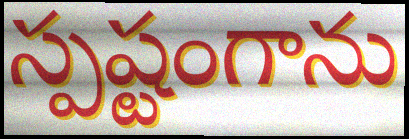
స్పష్టంగాను